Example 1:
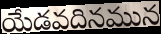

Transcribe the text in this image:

యేడవదినమున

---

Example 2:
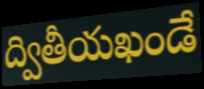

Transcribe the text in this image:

ద్వితీయఖండే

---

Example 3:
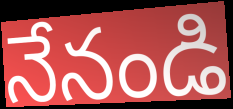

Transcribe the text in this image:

నేనండి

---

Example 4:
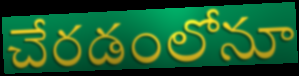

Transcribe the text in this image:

చేరడంలోనూ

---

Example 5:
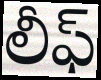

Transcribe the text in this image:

లీఫ్